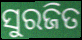
ସୁରଜିତ